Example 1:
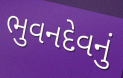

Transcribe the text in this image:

ભુવનદેવનું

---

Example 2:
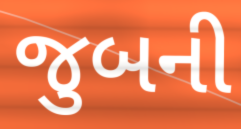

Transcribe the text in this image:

જુબની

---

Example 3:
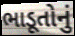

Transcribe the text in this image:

ભાડૂતોનું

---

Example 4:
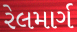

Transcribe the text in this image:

રેલમાર્ગ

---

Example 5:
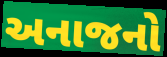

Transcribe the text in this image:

અનાજનો